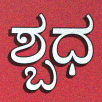
ಶ್ಬಧ